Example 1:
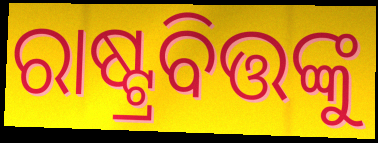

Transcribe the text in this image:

ରାଷ୍ଟ୍ରବିତ୍ତଙ୍କୁ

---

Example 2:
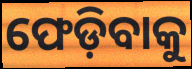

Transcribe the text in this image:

ଫେଡ଼ିବାକୁ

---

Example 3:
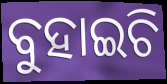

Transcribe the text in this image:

ବୁହାଇଚି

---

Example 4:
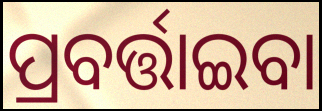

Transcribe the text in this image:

ପ୍ରବର୍ତ୍ତାଇବା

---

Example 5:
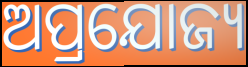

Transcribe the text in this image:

ଅପ୍ରଯୋଜ୍ୟ